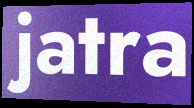
jatra